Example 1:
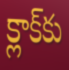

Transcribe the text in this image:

క్లాక్‌కు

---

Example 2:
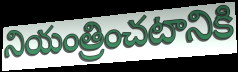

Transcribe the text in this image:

నియంత్రించటానికి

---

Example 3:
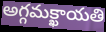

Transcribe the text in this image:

అగ్గమక్ఖాయతి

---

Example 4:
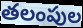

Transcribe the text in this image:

తలంపుల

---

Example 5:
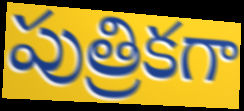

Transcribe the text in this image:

పుత్రికగా